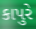
કાપુરે